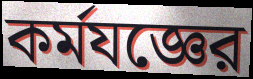
কর্মযজ্ঞের